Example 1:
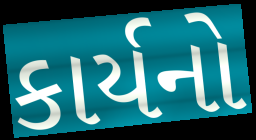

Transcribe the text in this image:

કાર્યનો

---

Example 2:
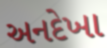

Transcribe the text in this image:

અનદેખા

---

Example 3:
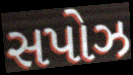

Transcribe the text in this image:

સપોઝ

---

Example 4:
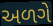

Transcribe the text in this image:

અળગે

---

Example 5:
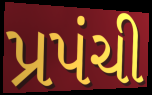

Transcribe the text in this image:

પ્રપંચી